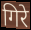
गिरे